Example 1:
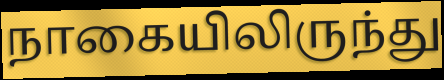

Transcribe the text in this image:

நாகையிலிருந்து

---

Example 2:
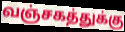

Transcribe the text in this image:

வஞ்சகத்துக்கு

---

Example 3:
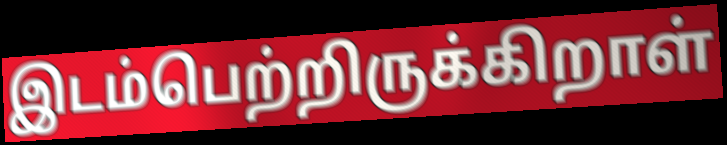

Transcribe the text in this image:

இடம்பெற்றிருக்கிறாள்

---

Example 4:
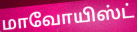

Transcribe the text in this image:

மாவோயிஸ்ட்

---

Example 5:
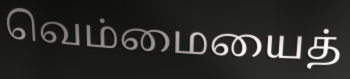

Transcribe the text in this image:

வெம்மையைத்